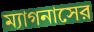
ম্যাগনাসের